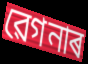
ৱেগনাৰ